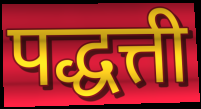
पद्धत्ती